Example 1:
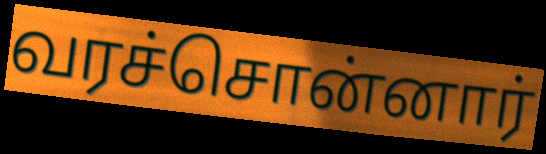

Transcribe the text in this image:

வரச்சொன்னார்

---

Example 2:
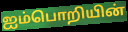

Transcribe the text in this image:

ஐம்பொறியின்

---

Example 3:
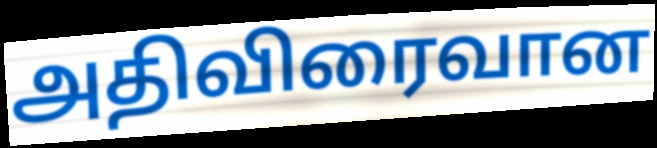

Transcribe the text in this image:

அதிவிரைவான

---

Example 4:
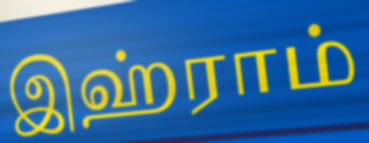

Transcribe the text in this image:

இஹ்ராம்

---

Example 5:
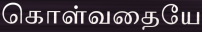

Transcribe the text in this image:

கொள்வதையே